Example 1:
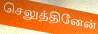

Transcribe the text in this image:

செலுத்தினேன்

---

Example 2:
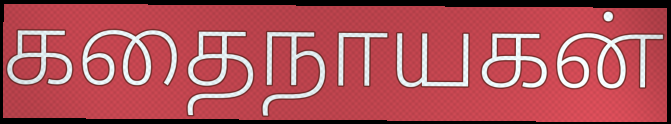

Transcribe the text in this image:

கதைநாயகன்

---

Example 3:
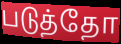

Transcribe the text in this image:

படுத்தோ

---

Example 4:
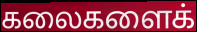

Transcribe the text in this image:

கலைகளைக்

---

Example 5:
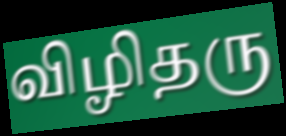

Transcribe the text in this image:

விழிதரு